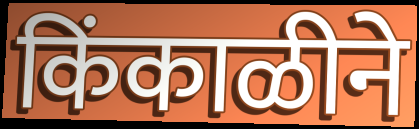
किंकाळीने